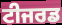
ਟੀਜਰਡ